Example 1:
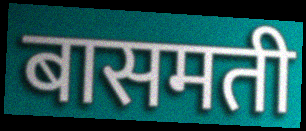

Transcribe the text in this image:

बासमती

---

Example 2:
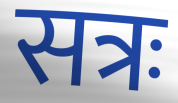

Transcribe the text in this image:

सत्रः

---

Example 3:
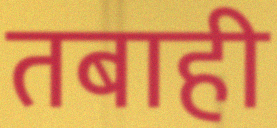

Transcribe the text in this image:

तबाही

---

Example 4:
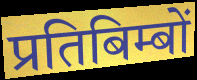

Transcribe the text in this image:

प्रतिबिम्बों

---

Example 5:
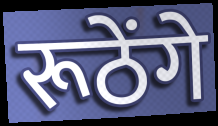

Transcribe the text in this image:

रूठेंगे